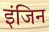
इंजिन